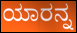
ಯಾರನ್ನ